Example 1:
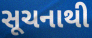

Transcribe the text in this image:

સૂચનાથી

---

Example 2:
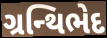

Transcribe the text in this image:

ગ્રન્થિભેદ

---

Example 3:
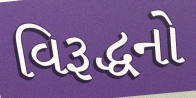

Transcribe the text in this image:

વિરૂદ્ધનો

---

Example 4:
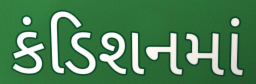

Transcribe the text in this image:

કંડિશનમાં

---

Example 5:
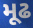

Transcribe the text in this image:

મૂઢ